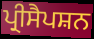
ਪ੍ਰੀਸੈਪਸ਼ਨ